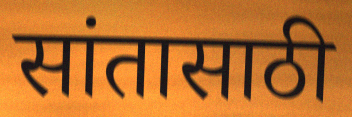
सांतासाठी